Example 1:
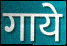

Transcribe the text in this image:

गाये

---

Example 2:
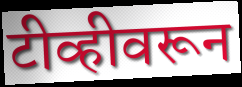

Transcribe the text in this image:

टीव्हीवरून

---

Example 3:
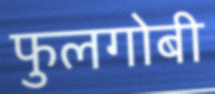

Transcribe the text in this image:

फुलगोबी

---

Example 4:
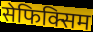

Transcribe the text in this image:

सेफिक्सिम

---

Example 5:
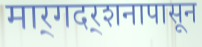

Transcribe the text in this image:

मार्गदर्शनापासून